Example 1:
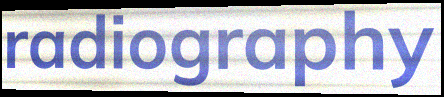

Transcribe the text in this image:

radiography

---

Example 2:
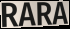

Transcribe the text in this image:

RARA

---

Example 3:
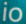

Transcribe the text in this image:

io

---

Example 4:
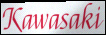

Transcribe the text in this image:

Kawasaki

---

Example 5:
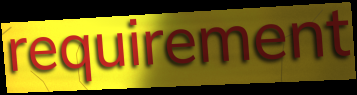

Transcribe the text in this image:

requirement